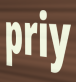
priy